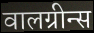
वालग्रीन्स